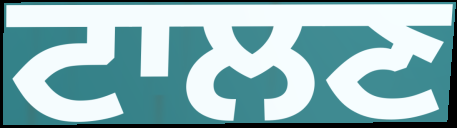
ਟਾਲਣ